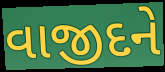
વાજીદને